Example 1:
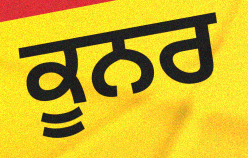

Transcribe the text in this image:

ਕੂਨਰ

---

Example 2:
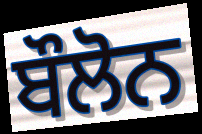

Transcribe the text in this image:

ਬੌਲੋਨ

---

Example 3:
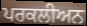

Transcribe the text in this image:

ਪਰਕਲੀਅਨ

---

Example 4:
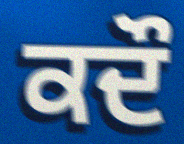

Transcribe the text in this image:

ਕਦੌ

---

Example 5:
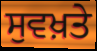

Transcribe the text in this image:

ਸੁਵਖ਼ਤੇ